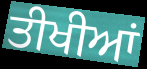
ਤੀਖੀਆਂ